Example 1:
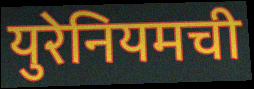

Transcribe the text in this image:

युरेनियमची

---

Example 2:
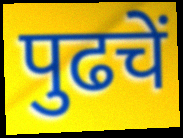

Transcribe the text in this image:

पुढचें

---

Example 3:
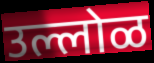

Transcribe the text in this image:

उल्लोळ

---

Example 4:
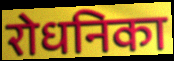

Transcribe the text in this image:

रोधनिका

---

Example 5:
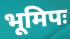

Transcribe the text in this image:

भूमिपः